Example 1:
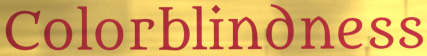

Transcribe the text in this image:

Colorblindness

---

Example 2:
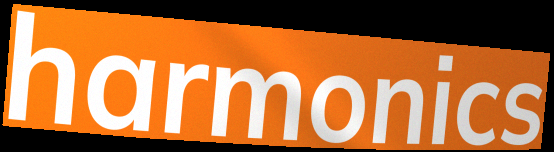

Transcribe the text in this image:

harmonics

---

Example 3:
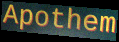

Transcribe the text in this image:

Apothem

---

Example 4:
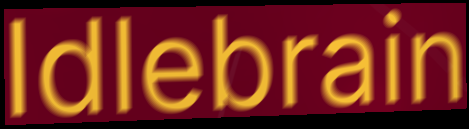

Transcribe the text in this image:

Idlebrain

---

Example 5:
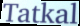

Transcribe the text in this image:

Tatkal